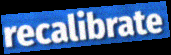
recalibrate